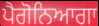
ਪੈਗੋਨਿਆਗਾ